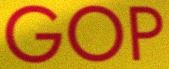
GOP